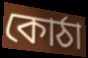
কোঠা